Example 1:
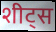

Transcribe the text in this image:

शीट्स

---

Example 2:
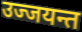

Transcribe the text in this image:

उज्जयन्त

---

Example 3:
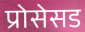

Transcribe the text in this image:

प्रोसेसड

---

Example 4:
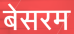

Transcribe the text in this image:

बेसरम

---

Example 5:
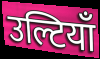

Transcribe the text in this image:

उल्टियाँ